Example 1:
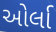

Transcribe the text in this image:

ઓર્લા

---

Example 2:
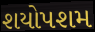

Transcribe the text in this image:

શયોપશમ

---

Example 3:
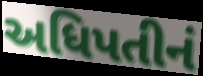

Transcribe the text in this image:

અધિપતીનં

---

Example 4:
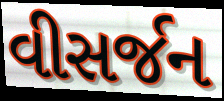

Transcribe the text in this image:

વીસર્જન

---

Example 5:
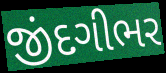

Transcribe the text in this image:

જીંદગીભર